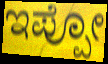
ಇಪ್ಪೋ